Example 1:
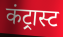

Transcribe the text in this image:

कंट्रास्ट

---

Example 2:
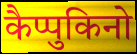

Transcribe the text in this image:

कैप्पुकिनो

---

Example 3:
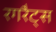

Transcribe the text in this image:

रगरैट्स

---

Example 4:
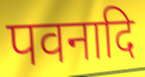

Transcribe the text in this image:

पवनादि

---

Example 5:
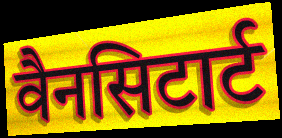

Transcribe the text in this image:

वैनसिटार्ट